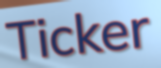
Ticker